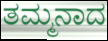
ತಮ್ಮನಾದ